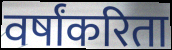
वर्षांकरिता